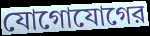
যোগোযোগের